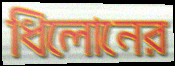
ধিলোনের